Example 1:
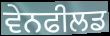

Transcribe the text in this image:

ਵੇਨਫੀਲਡ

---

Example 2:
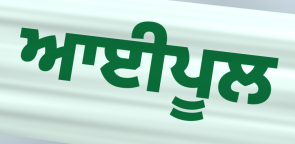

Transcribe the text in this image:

ਆਈਪੂਲ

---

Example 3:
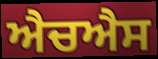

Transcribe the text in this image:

ਐਚਐਸ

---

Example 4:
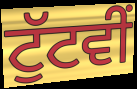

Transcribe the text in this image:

ਟੁੱਟਵੀਂ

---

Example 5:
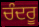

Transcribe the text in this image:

ਚੰਦਰੂ